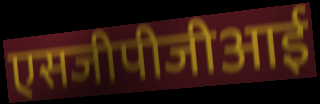
एसजीपीजीआई